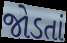
જોડતાં